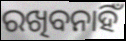
ରଖିବନାହିଁ